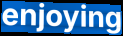
enjoying